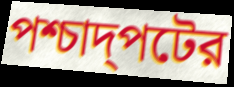
পশ্চাদ্পটের